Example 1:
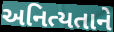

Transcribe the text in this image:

અનિત્યતાને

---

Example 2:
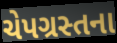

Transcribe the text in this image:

ચેપગ્રસ્તના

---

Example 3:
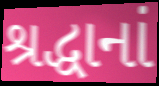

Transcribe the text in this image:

શ્રદ્ધાનાં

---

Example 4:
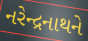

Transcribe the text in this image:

નરેન્દ્રનાથને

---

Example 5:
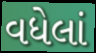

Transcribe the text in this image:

વધેલાં